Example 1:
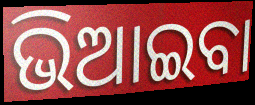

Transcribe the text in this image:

ଭିଆଇବା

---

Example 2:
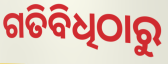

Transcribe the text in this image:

ଗତିବିଧିଠାରୁ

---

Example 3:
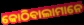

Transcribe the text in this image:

କୋଠିବାଲାମାନେ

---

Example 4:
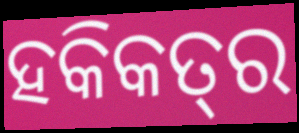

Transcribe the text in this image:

ହକିକତ୍‌ର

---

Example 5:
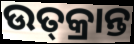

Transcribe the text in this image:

ଉତ୍‌କ୍ରାନ୍ତ